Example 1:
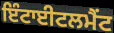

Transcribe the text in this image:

ਇੰਟਾਈਟਲਮੈਂਟ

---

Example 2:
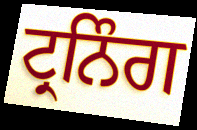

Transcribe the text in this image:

ਟ੍ਰਨਿੰਗ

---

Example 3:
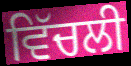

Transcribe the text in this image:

ਵਿੱਚਲੀ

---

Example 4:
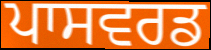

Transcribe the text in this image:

ਪਾਸਵਰਡ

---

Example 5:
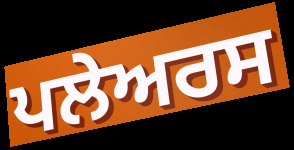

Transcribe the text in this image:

ਪਲੇਅਰਸ